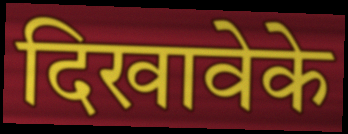
दिखावेके